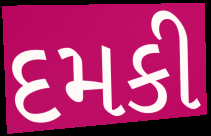
દમકી